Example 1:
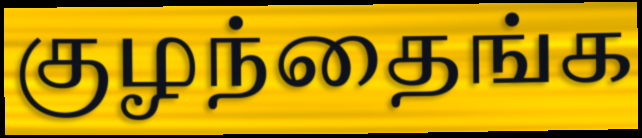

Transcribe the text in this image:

குழந்தைங்க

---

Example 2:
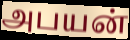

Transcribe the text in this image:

அபயன்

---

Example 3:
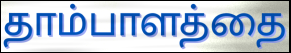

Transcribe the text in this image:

தாம்பாளத்தை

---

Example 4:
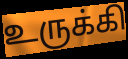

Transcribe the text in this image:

உருக்கி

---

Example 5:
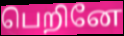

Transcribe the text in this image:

பெறினே